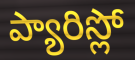
ప్యారిస్లో